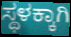
ಸ್ಥಳಕ್ಕಾಗಿ